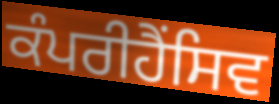
ਕੰਪਰੀਹੈਂਸਿਵ